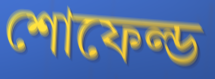
শোফেল্ড